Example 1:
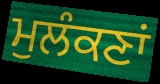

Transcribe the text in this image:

ਮੁਲੰਕਣਾਂ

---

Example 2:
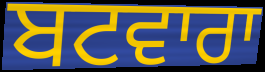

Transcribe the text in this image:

ਬਟਵਾਰਾ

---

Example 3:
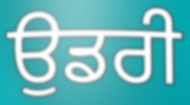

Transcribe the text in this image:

ਉਡਰੀ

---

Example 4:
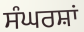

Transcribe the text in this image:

ਸੰਘਰਸ਼ਾਂ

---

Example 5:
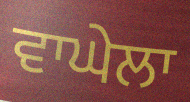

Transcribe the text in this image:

ਵਾਘੇਲਾ